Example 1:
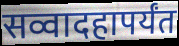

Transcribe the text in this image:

सव्वादहापर्यंत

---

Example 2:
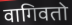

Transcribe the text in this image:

वागिवतो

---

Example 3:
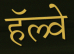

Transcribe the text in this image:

हॅल्वे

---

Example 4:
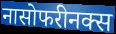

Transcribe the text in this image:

नासोफरीनक्स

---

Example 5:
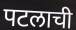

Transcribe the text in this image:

पटलाची